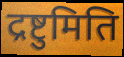
द्रष्टुमिति